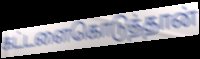
கட்டளைகொடுத்தான்